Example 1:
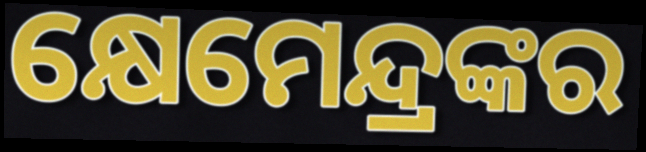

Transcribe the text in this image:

କ୍ଷେମେନ୍ଦ୍ରଙ୍କର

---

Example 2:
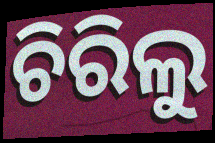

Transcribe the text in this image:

ଚିରିଲୁ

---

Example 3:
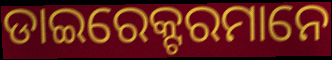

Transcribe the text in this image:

ଡାଇରେକ୍ଟରମାନେ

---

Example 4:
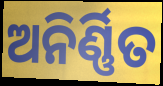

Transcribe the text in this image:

ଅନିର୍ଣ୍ଣିତ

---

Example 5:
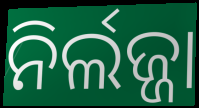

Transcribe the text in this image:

ନିର୍ଲଜ୍ଜା